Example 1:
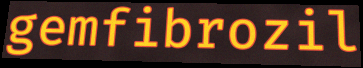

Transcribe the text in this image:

gemfibrozil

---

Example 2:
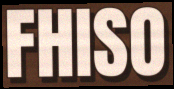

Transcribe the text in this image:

FHISO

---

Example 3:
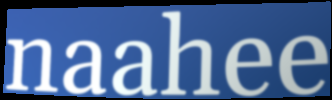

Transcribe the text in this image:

naahee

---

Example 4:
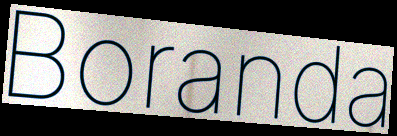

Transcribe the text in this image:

Boranda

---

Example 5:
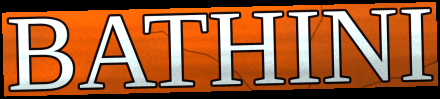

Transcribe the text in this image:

BATHINI